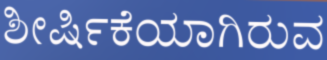
ಶೀರ್ಷಿಕೆಯಾಗಿರುವ